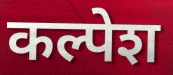
कल्पेश